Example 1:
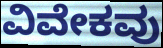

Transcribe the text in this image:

ವಿವೇಕವು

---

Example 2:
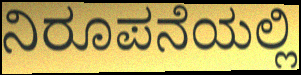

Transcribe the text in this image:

ನಿರೂಪನೆಯಲ್ಲಿ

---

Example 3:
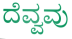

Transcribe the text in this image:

ದೆವ್ವವು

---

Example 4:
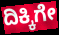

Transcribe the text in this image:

ದಿಕ್ಕಿಗೇ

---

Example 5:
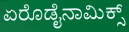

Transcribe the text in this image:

ಏರೊಡೈನಾಮಿಕ್ಸ್